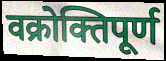
वक्रोक्तिपूर्ण